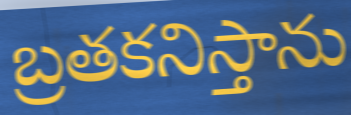
బ్రతకనిస్తాను